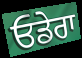
ਓਡੇਰਾ